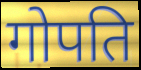
गोपति